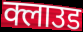
क्‍लाउड